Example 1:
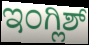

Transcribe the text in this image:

ಇಂಗ್ಲಿಶ್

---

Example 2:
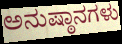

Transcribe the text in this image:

ಅನುಷ್ಠಾನಗಳು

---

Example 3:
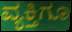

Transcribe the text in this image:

ವ್ಯಕ್ತಿಗೂ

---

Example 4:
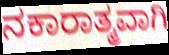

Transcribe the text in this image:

ನಕಾರಾತ್ಮವಾಗಿ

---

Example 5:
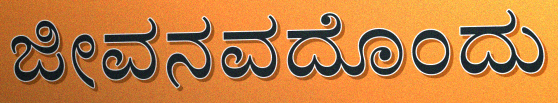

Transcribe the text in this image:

ಜೀವನವದೊಂದು